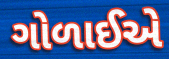
ગોળાઈએ